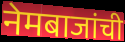
नेमबाजांची